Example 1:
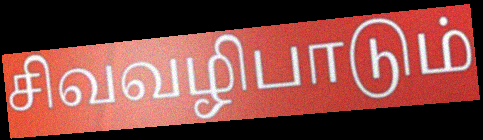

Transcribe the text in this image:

சிவவழிபாடும்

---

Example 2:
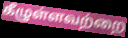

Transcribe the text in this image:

கீழுள்ளவற்றை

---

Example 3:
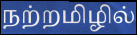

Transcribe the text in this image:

நற்றமிழில்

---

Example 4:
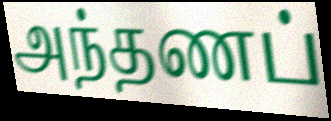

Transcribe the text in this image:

அந்தணப்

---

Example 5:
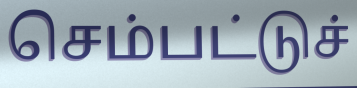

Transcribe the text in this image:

செம்பட்டுச்